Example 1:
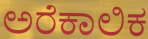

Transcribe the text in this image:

ಅರೆಕಾಲಿಕ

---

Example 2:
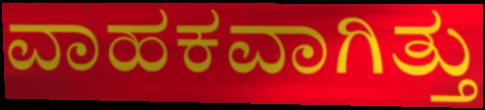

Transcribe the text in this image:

ವಾಹಕವಾಗಿತ್ತು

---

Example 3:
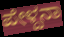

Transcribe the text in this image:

ಪೇಳ್ದನಾ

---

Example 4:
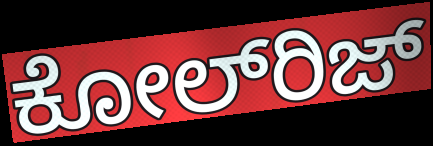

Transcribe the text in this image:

ಕೋಲ್‍ರಿಜ್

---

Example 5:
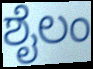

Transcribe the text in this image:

ಶೈಲಂ